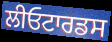
ਲੀਓਟਾਰਡਸ